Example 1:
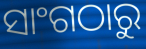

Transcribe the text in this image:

ସାଂଗଠାରୁ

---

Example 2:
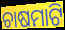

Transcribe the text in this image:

ଚାଷମାଟି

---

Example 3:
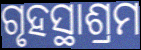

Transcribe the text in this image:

ଗୃହସ୍ଥାଶ୍ରମ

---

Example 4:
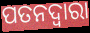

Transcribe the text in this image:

ପତନଦ୍ଵାରା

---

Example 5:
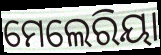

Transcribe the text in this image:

ମେଲେରିୟା